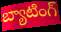
బ్యాటింగ్